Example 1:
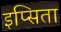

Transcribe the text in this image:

इप्सिता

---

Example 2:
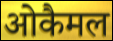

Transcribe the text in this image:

ओकैमल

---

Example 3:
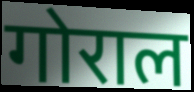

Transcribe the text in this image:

गोराल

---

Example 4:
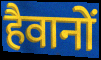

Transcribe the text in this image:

हैवानों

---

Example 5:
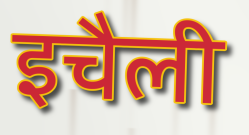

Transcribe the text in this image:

इचैली